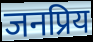
जनप्रिय